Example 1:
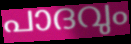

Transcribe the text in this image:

പാദവും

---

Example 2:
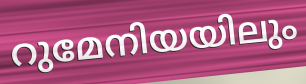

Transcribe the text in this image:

റുമേനിയയിലും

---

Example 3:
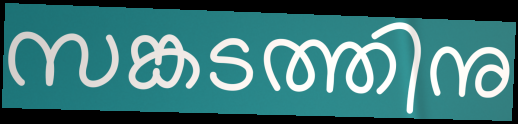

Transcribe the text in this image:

സങ്കടത്തിനു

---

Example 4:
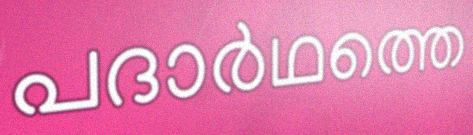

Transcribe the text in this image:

പദാർഥത്തെ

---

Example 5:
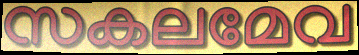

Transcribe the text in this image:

സകലമേവ